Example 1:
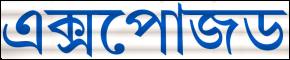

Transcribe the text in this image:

এক্সপোজড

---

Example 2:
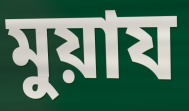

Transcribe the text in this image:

মুয়ায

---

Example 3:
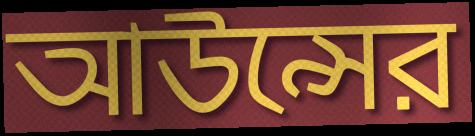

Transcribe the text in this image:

আউন্সের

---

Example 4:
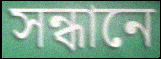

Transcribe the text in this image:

সন্ধানে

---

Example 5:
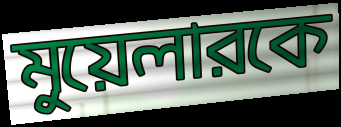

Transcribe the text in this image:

মুয়েলারকে